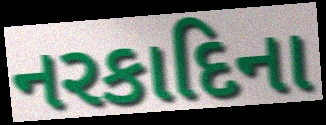
નરકાદિના